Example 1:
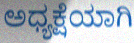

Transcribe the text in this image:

ಅಧ್ಯಕ್ಷೆಯಾಗಿ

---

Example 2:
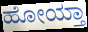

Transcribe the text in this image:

ಹೋಯ್ತಾ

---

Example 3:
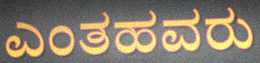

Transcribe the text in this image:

ಎಂತಹವರು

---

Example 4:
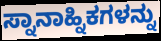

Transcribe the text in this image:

ಸ್ನಾನಾಹ್ನಿಕಗಳನ್ನು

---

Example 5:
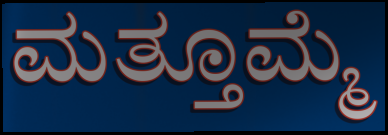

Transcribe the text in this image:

ಮತ್ತೂಮ್ಮೆ